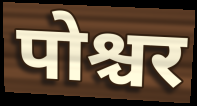
पोश्चर